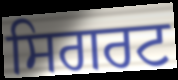
ਸਿਗਰਟ